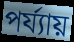
পৰ্য্যায়